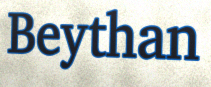
Beythan